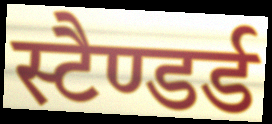
स्टैण्डर्ड